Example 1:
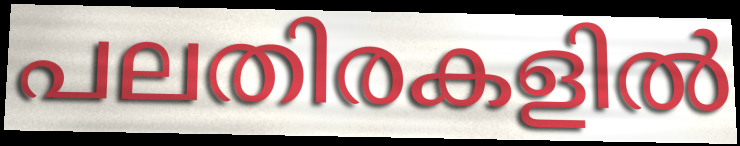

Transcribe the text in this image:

പലതിരകളിൽ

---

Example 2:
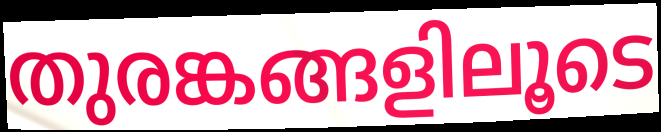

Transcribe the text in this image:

തുരങ്കങ്ങളിലൂടെ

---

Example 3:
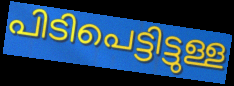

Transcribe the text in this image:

പിടിപെട്ടിട്ടുള്ള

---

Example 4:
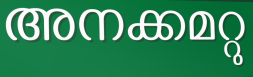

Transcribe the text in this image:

അനക്കമറ്റു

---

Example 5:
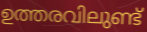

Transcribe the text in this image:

ഉത്തരവിലുണ്ട്